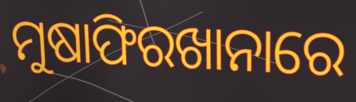
ମୁଷାଫିରଖାନାରେ